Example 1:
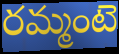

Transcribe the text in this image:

రమ్మంటె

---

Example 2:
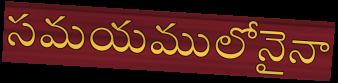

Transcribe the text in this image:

సమయములోనైనా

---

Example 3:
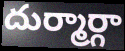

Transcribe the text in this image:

దుర్మార్గా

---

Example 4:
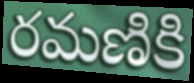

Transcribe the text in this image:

రమణికి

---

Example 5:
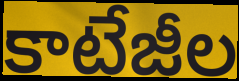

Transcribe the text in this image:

కాటేజీల